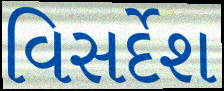
વિસર્દેશ